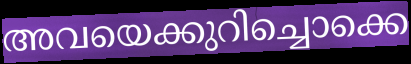
അവയെക്കുറിച്ചൊക്കെ